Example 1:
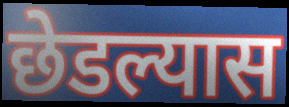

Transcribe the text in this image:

छेडल्यास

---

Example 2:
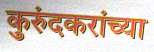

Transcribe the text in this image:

कुरुंदकरांच्या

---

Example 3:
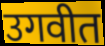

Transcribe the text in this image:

उगवीत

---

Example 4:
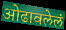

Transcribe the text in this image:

ओढावलेलं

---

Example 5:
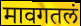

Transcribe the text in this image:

मावगतलं